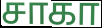
சாகா